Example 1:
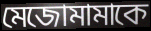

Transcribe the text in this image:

মেজোমামাকে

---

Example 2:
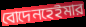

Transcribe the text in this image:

বোদেনহেইমার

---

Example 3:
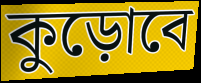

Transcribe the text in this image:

কুড়োবে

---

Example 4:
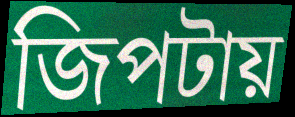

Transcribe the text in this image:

জিপটায়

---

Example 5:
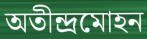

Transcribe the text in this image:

অতীন্দ্রমোহন